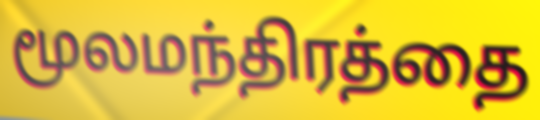
மூலமந்திரத்தை